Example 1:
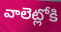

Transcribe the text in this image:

వాలెట్లోకి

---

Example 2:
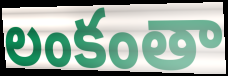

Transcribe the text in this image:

లంకంతా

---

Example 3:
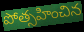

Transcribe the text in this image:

పోత్సహించిన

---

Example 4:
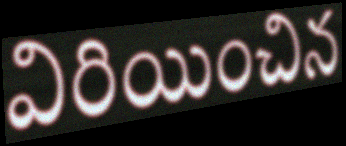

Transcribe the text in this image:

విరియించిన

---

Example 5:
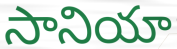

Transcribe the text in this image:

సానియా